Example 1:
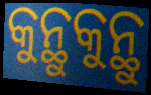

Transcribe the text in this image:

କୁନ୍ଥୁକୁନ୍ଥୁ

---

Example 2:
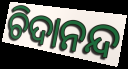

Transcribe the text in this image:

ଚିଦାନନ୍ଦ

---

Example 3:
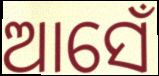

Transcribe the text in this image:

ଆସେଁ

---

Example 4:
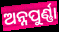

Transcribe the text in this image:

ଅନ୍ନପୁର୍ଣ୍ଣା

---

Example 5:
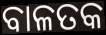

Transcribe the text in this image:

ବାଳତକ